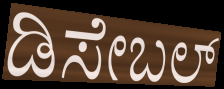
ಡಿಸೇಬಲ್